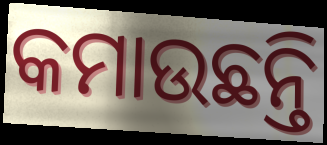
କମାଉଛନ୍ତି